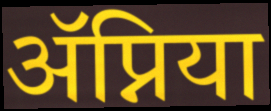
ॲप्निया